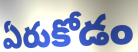
ఏరుకోడం